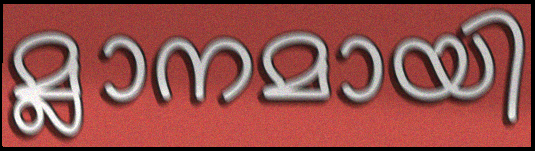
മ്ലാനമായി